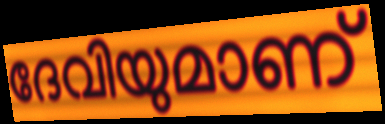
ദേവിയുമാണ്